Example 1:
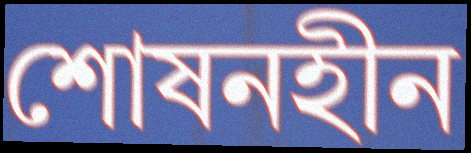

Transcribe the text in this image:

শোষনহীন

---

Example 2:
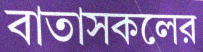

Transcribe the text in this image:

বাতাসকলের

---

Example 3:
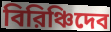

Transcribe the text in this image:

বিরিঞ্চিদেব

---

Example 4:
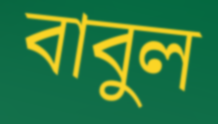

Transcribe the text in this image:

বাবুল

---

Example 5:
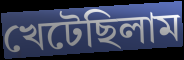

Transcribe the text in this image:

খেটেছিলাম